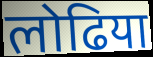
लोढिया